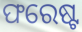
ଫରେଷ୍ଟ